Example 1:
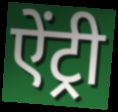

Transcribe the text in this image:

ऐंट्री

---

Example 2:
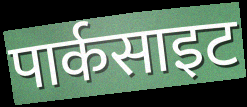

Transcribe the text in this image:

पार्कसाइट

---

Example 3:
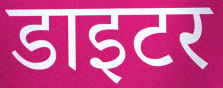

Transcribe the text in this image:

डाइटर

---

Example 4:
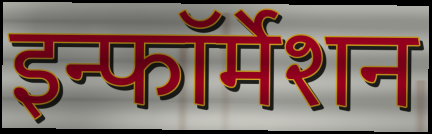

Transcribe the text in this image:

इन्फॉर्मेशन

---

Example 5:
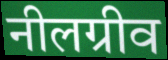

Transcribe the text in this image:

नीलग्रीव